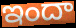
ఇందా